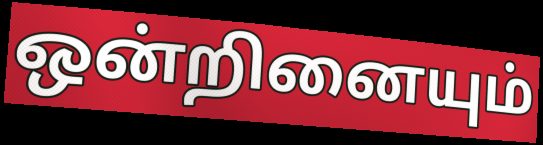
ஒன்றினையும்